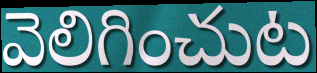
వెలిగించుట